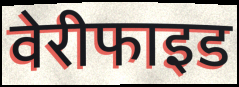
वेरीफाइड